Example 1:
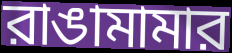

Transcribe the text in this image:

রাঙামামার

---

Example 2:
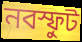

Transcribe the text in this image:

নবস্ফুট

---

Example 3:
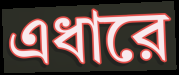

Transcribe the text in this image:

এধারে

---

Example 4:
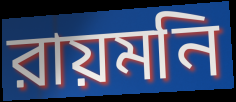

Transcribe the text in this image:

রায়মনি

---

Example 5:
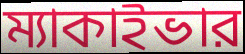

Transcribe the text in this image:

ম্যাকাইভার